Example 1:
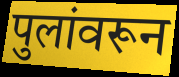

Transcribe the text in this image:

पुलांवरून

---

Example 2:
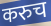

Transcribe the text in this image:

करुच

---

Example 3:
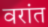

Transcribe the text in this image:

वरांत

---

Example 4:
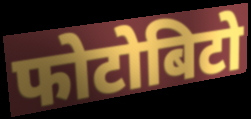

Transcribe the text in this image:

फोटोबिटो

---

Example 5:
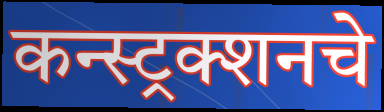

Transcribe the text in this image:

कन्स्ट्रक्शनचे